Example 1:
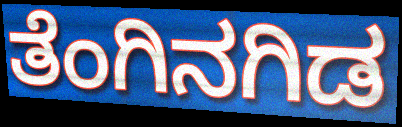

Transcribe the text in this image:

ತೆಂಗಿನಗಿಡ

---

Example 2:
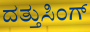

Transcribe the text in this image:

ದತ್ತುಸಿಂಗ್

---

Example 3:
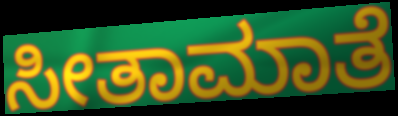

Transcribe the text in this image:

ಸೀತಾಮಾತೆ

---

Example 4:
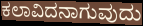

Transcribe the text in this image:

ಕಲಾವಿದನಾಗುವುದು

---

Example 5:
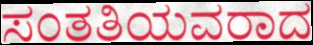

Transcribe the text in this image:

ಸಂತತಿಯವರಾದ